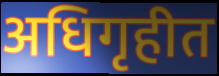
अधिगृहीत